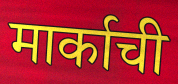
मार्काची